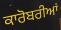
ਕਾਰੋਬਰੀਆਂ